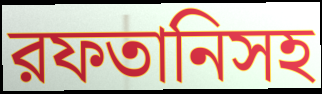
রফতানিসহ